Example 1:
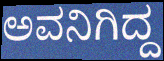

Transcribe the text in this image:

ಅವನಿಗಿದ್ದ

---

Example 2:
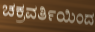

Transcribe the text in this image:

ಚಕ್ರವರ್ತಿಯಿಂದ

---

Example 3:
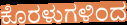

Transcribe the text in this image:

ಕೊರಳುಗಳಿಂದ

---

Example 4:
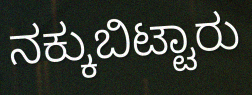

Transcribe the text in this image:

ನಕ್ಕುಬಿಟ್ಟಾರು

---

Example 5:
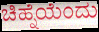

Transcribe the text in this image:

ಚಿಹ್ನೆಯೆಂದು